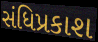
સંધિપ્રકાશ